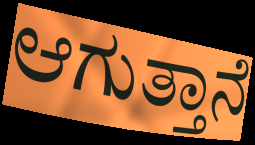
ಆಗುತ್ತಾನೆ